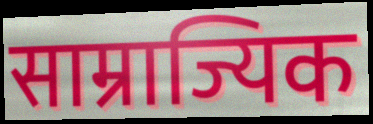
साम्राज्यिक